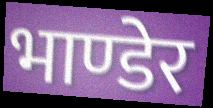
भाण्‍डेर